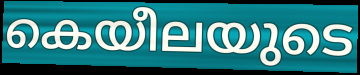
കെയീലയുടെ